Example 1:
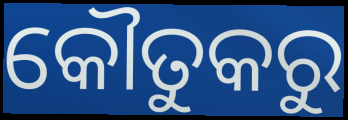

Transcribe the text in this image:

କୌତୁକରୁ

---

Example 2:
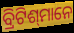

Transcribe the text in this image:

ବ୍ରିଟିଶ୍‍ମାନେ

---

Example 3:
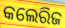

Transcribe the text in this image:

କଲେରିଜ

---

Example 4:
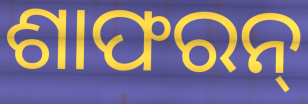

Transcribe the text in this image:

ଶାଫରନ୍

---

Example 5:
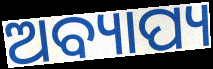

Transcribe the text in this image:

ଅବ୍ୟାପ୍ୟ